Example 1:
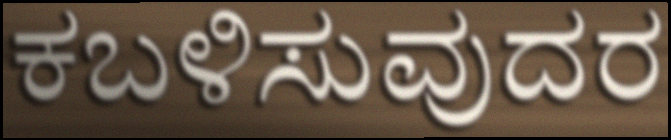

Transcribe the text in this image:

ಕಬಳಿಸುವುದರ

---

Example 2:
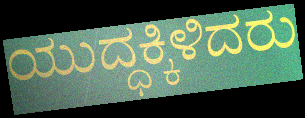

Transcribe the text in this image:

ಯುದ್ಧಕ್ಕಿಳಿದರು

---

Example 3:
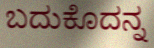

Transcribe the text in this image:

ಬದುಕೊದನ್ನ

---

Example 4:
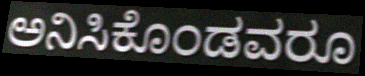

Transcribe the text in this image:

ಅನಿಸಿಕೊಂಡವರೂ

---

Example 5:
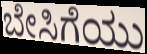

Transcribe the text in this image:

ಬೇಸಿಗೆಯು